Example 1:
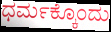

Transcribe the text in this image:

ಧರ್ಮಕ್ಕೊಂದು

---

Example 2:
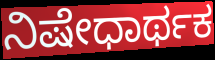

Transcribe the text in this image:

ನಿಷೇಧಾರ್ಥಕ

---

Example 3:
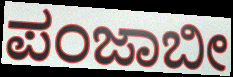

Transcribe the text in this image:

ಪಂಜಾಬೀ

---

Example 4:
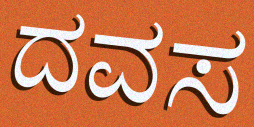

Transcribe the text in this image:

ದವಸ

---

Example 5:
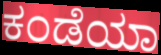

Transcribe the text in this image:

ಕಂಡೆಯಾ